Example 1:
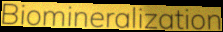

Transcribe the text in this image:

Biomineralization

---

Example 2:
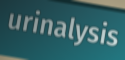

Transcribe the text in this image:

urinalysis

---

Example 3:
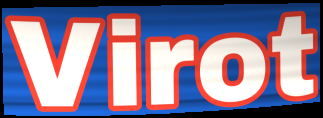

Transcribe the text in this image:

Virot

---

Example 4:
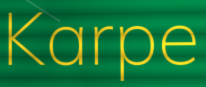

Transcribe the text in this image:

Karpe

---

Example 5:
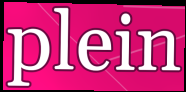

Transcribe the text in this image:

plein